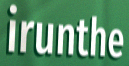
irunthe